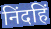
निंदहिं